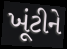
ખૂંટીને